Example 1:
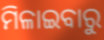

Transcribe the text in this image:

ମିଳାଇବାରୁ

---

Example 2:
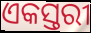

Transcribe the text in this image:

ଏକସ୍ତରୀ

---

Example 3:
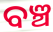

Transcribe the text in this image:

ବଞ୍ଚ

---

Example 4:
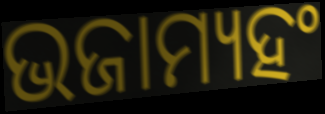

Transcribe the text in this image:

ଭଜାମ୍ୟହଂ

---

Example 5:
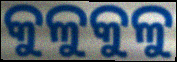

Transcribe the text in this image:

କୁଳୁକୁଳୁ